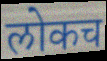
लोकच